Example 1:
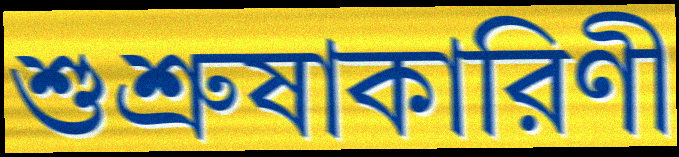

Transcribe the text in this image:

শুশ্রুষাকারিণী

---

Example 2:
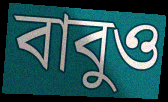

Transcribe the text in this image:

বাবুও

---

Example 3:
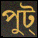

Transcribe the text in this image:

পুট্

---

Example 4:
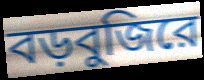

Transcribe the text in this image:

বড়বুজিরে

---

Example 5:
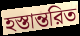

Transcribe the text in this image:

হস্তান্তরিত